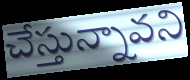
చేస్తున్నావని